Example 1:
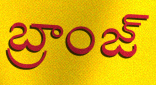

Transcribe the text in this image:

బ్రాంజ్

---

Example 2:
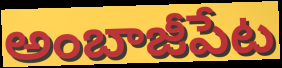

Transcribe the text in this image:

అంబాజీపేట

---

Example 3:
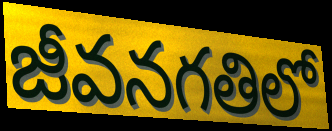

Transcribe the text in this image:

జీవనగతిలో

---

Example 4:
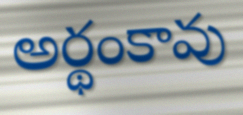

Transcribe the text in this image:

అర్థంకావు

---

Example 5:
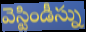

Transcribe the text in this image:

వెస్టిండీస్ను